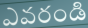
ఎవరండి